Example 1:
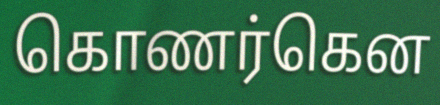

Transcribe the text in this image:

கொணர்கென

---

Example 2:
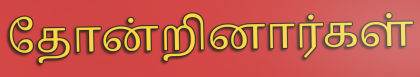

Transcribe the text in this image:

தோன்றினார்கள்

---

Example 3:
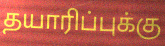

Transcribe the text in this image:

தயாரிப்புக்கு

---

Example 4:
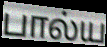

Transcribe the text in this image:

பால்ய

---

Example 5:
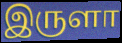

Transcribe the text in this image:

இருளா